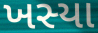
ખસ્યા